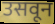
उसवून